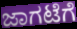
ಜಾಗಟೆಗೆ